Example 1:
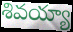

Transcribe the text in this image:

శివయ్యా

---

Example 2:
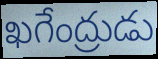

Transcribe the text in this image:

ఖగేంద్రుడు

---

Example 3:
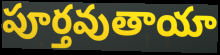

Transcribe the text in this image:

పూర్తవుతాయా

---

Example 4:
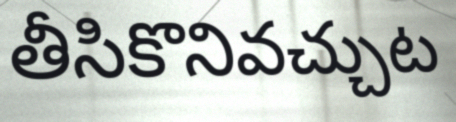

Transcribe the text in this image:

తీసికొనివచ్చుట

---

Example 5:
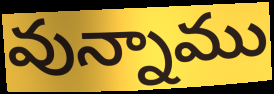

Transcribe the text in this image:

వున్నాము